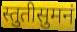
स्तुतीसुमनं